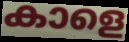
കാളെ